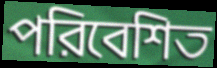
পরিবেশিত